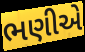
ભણીએ